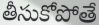
తీసుకోపోతే